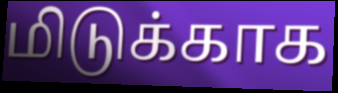
மிடுக்காக